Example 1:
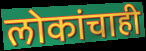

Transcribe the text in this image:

लोकांचाही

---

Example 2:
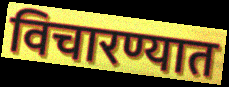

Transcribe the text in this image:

विचारण्यात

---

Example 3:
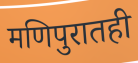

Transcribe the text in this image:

मणिपुरातही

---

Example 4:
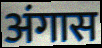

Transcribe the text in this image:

अंगास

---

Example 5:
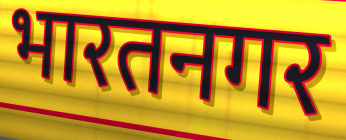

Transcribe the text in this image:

भारतनगर